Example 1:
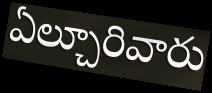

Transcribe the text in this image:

ఏల్చూరివారు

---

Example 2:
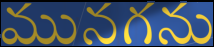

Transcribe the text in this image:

మునగను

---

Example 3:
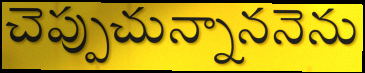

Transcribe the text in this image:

చెప్పుచున్నాననెను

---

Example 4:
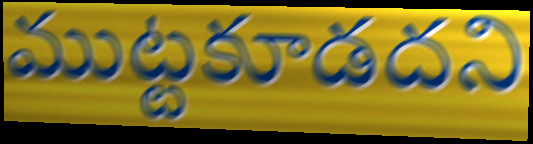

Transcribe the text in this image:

ముట్టకూడదని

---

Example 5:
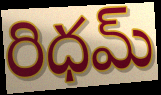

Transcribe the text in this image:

రిధమ్